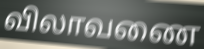
விலாவணை